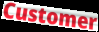
Customer